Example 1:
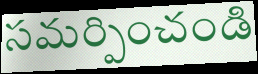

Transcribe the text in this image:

సమర్పించండి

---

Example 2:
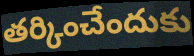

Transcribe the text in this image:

తర్కించేందుకు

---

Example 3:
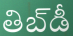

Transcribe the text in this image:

తిబ్‌డీ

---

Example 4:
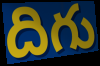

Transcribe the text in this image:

దిగు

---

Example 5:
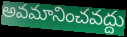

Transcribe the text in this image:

అవమానించవద్దు